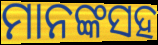
ମାନଙ୍କସହ